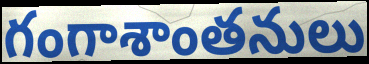
గంగాశాంతనులు